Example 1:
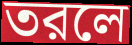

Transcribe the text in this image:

তরলে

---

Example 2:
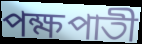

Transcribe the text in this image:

পক্ষপাতী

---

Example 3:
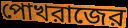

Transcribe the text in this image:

পোখরাজের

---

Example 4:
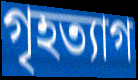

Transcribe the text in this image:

গৃহত্যাগ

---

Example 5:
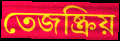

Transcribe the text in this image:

তেজষ্ক্রিয়